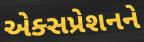
એક્સપ્રેશનને